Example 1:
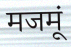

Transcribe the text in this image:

मजमूं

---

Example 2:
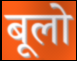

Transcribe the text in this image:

बूलो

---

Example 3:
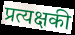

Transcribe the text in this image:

प्रत्यक्षकी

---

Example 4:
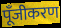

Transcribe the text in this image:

पूँजीकरण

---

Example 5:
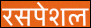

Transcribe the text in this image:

रसपेशल